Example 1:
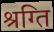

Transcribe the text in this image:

श्रग्ति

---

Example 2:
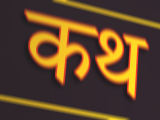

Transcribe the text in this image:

कथ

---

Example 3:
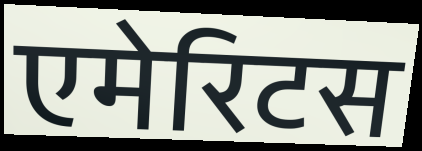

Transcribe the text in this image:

एमेरिटस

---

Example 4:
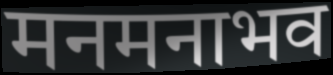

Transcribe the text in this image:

मनमनाभव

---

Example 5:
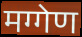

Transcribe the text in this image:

मग्गेण